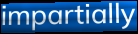
impartially